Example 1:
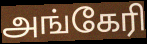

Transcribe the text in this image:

அங்கேரி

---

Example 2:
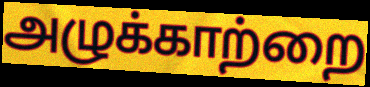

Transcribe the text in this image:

அழுக்காற்றை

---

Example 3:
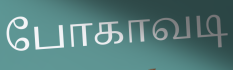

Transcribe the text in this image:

போகாவடி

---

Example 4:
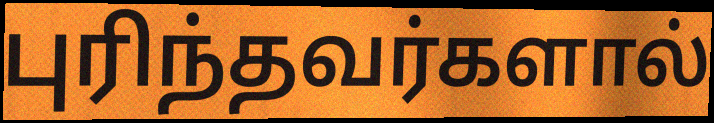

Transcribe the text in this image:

புரிந்தவர்களால்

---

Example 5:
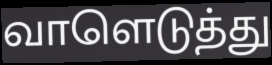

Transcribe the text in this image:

வாளெடுத்து